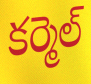
కర్మెల్